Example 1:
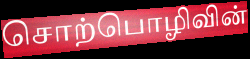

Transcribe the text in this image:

சொற்பொழிவின்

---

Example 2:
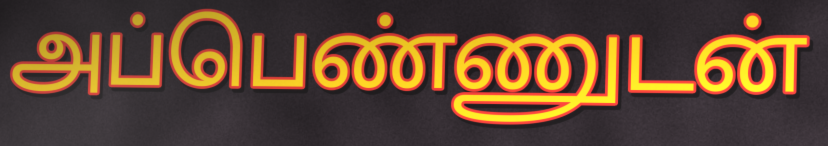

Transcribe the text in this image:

அப்பெண்ணுடன்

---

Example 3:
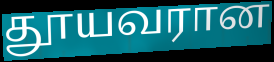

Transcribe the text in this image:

தூயவரான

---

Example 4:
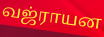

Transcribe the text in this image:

வஜ்ராயன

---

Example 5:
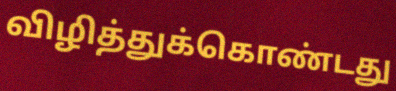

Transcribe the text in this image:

விழித்துக்கொண்டது